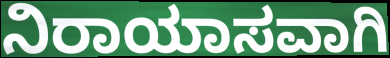
ನಿರಾಯಾಸವಾಗಿ